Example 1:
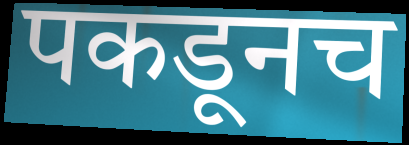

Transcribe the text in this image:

पकडूनच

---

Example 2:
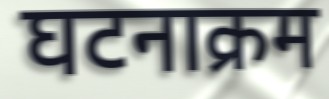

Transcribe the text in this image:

घटनाक्रम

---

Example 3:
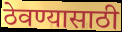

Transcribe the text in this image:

ठेवण्यासाठी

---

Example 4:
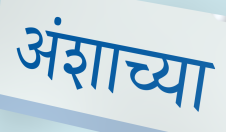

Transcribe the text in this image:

अंशाच्या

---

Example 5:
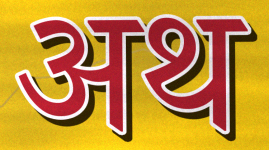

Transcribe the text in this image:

अथ